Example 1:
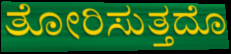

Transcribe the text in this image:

ತೋರಿಸುತ್ತದೊ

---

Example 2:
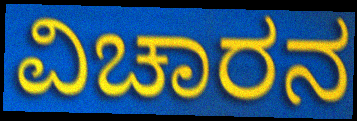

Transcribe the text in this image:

ವಿಚಾರನ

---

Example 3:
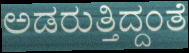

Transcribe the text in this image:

ಅಡರುತ್ತಿದ್ದಂತೆ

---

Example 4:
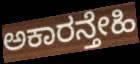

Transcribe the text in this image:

ಅಕಾರನ್ತೇಹಿ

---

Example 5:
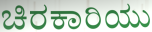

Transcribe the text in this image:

ಚಿರಕಾರಿಯು